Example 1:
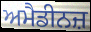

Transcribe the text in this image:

ਅਮੈਡੀਨਜ਼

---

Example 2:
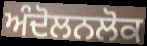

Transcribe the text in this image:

ਅੰਦੋਲਨਲੋਕ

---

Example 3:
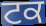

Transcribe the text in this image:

ਟਕ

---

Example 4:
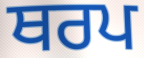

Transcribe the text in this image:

ਥਰਪ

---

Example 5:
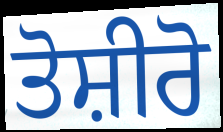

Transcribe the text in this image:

ਤੋਸ਼ੀਰੋ